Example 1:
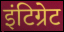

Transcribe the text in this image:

इंटिग्रेट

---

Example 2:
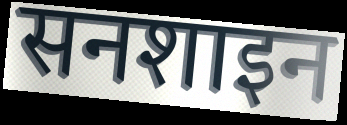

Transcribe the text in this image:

सनशाइन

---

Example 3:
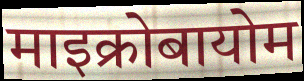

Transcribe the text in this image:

माइक्रोबायोम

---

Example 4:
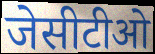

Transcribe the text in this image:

जेसीटीओ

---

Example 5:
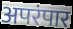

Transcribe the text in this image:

अपरंपार